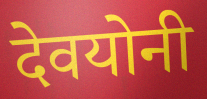
देवयोनी